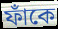
ফাঁকে